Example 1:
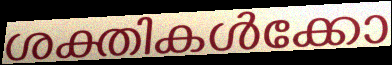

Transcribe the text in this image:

ശക്തികൾക്കോ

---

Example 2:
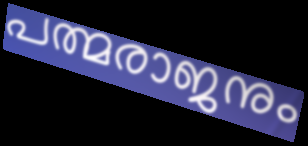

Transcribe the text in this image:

പത്മരാജനും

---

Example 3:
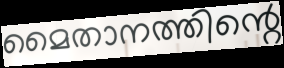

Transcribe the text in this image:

മൈതാനത്തിന്റെ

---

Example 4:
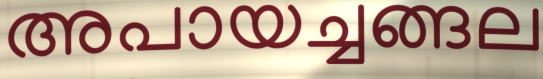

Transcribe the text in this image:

അപായച്ചങ്ങല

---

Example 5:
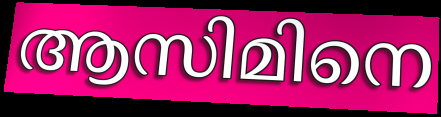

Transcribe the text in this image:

ആസിമിനെ